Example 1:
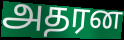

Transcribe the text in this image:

அதரன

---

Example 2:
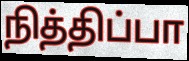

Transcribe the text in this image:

நித்திப்பா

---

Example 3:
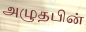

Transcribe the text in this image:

அழுதபின்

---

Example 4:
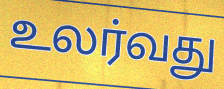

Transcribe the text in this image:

உலர்வது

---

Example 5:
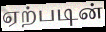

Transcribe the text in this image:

ஏற்படின்